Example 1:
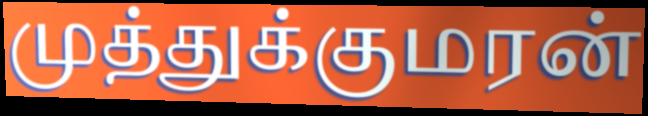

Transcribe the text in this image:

முத்துக்குமரன்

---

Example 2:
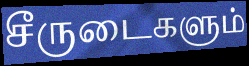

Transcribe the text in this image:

சீருடைகளும்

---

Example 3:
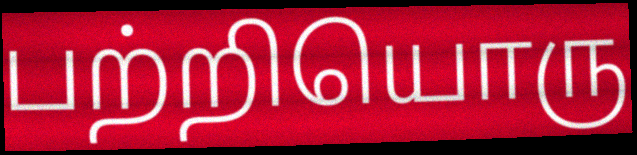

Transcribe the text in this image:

பற்றியொரு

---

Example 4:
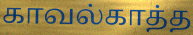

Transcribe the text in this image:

காவல்காத்த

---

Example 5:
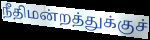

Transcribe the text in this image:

நீதிமன்றத்துக்குச்